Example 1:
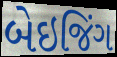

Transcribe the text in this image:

બેઇજિંગ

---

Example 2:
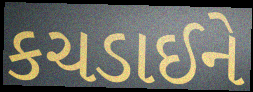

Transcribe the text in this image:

કચડાઈને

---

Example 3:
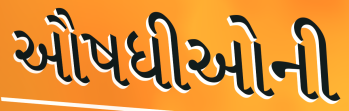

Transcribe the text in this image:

ઔષધીઓની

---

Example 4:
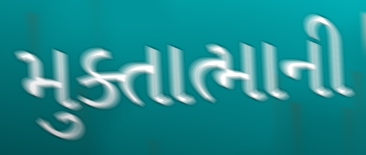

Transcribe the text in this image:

મુક્તાત્માની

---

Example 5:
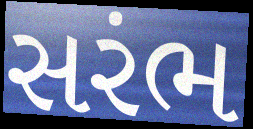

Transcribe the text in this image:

સરંભ